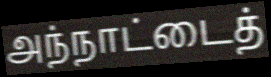
அந்நாட்டைத்